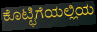
ಕೊಟ್ಟಿಗೆಯಲ್ಲಿಯ